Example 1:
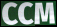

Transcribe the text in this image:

CCM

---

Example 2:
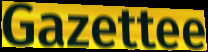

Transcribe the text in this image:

Gazettee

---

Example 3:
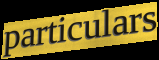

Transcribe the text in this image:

particulars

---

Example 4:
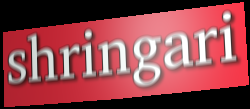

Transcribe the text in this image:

shringari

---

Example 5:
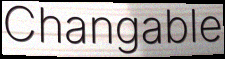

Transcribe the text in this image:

Changable